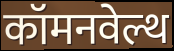
कॉमनवेल्थ